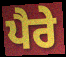
ਪੈਰੇ